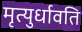
मृत्युर्धावति